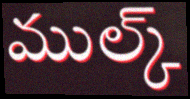
ముల్క్